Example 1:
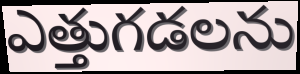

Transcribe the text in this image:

ఎత్తుగడలను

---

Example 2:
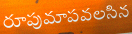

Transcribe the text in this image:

రూపుమాపవలసిన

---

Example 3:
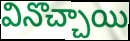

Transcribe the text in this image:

వినొచ్చాయి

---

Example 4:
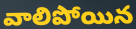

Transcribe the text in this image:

వాలిపోయిన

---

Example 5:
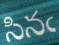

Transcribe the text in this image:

సినఁ